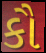
કૌ